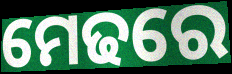
ମେଢରେ